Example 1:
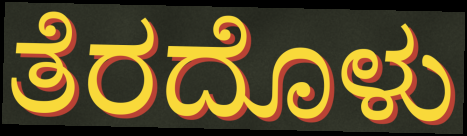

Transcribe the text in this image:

ತೆರದೊಳು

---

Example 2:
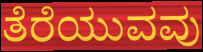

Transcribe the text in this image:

ತೆರೆಯುವವು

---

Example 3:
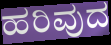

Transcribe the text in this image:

ಹರಿವುದ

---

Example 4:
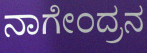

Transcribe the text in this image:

ನಾಗೇಂದ್ರನ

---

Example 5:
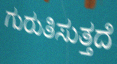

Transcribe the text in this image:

ಗುರುತಿಸುತ್ತದೆ